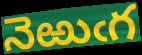
నెఱుఁగ